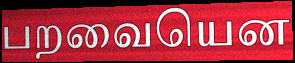
பறவையென